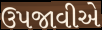
ઉપજાવીએ